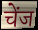
चेंज